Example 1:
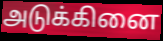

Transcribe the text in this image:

அடுக்கினை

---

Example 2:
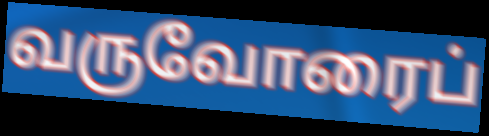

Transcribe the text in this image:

வருவோரைப்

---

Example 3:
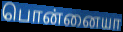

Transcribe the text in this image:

பொன்னையா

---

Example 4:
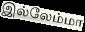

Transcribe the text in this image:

இல்லேம்மா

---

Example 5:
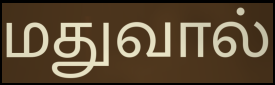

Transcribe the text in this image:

மதுவால்